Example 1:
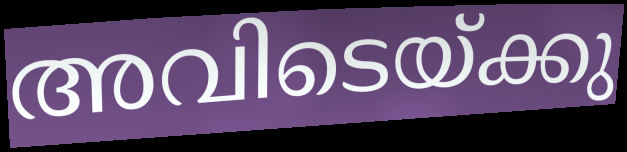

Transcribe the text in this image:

അവിടെയ്ക്കു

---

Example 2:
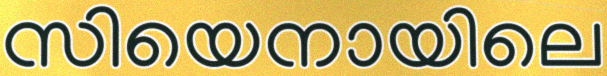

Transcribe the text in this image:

സിയെനായിലെ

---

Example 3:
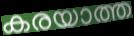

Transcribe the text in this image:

കരയാത്ത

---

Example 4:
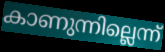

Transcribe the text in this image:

കാണുന്നില്ലെന്ന്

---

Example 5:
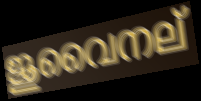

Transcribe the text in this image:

ജുവൈനല്